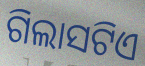
ଗିଲାସଟିଏ